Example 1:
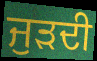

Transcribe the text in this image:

ਜੁੜਦੀ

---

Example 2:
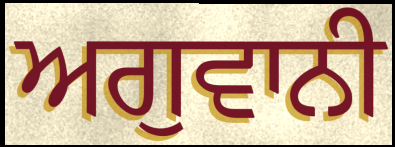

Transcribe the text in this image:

ਅਗੁਵਾਨੀ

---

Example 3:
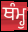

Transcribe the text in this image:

ਥੰਮ੍ਹ੍ਹੁ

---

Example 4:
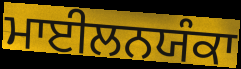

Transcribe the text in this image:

ਮਾਈਲਨਯੰਕਾ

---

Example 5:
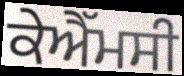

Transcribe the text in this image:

ਕੇਐੱਮਸੀ